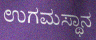
ಉಗಮಸ್ಥಾನ